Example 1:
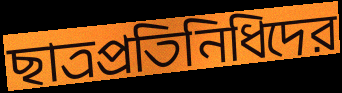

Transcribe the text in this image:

ছাত্রপ্রতিনিধিদের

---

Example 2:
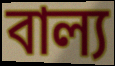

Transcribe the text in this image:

বাল্য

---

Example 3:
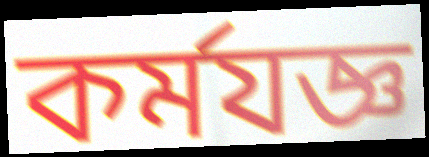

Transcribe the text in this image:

কর্মযজ্ঞ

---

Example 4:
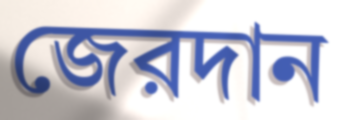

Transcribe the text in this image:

জেরদান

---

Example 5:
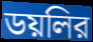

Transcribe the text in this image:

ডয়লির